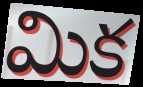
మిక